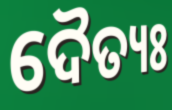
ଦୈତ୍ୟଃ